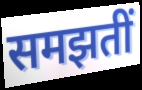
समझतीं